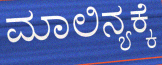
ಮಾಲಿನ್ಯಕ್ಕೆ